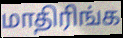
மாதிரிங்க